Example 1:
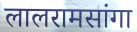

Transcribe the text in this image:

लालरामसांगा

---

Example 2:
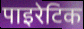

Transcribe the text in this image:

पाइरेटिक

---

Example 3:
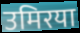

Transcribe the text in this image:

उमिरया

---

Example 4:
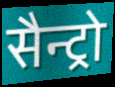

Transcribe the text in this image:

सैन्ट्रो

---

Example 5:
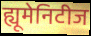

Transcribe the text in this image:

ह्यूमेनिटीज